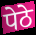
पेठे